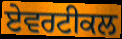
ਏਵਰਟੀਕਲ